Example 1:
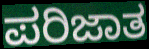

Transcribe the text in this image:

ಪರಿಜಾತ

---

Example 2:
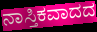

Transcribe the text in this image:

ನಾಸ್ತಿಕವಾದದ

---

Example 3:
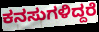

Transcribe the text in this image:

ಕನಸುಗಳಿದ್ದರೆ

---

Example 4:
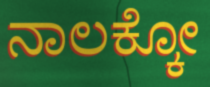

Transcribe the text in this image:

ನಾಲಕ್ಕೋ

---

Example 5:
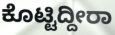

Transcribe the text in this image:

ಕೊಟ್ಟಿದ್ದೀರಾ